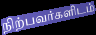
நிற்பவர்களிடம்